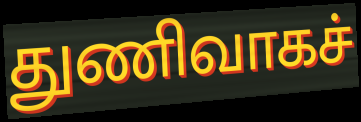
துணிவாகச்